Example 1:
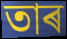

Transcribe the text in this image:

তাৰ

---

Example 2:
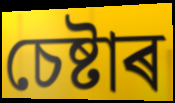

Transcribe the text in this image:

চেষ্টাৰ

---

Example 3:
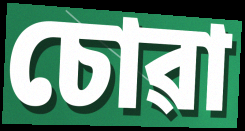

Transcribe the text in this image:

চোৱা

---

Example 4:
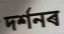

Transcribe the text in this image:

দৰ্শনৰ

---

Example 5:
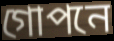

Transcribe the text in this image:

গোপনে